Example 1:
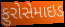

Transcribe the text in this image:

ફુરોસેમાઇડ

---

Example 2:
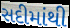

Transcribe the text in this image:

સદીમાંથી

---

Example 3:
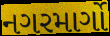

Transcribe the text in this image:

નગરમાર્ગો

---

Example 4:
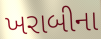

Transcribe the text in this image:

ખરાબીના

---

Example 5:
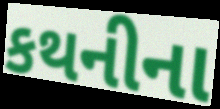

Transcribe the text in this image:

કથનીના